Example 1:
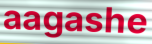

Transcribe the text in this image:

aagashe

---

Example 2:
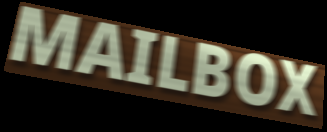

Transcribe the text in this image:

MAILBOX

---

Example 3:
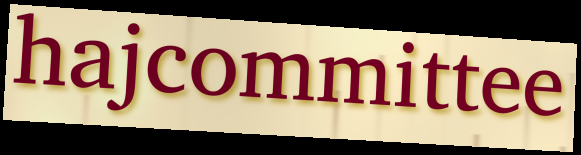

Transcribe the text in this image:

hajcommittee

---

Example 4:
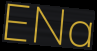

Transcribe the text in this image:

ENa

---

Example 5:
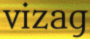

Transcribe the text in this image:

vizag